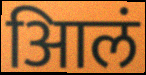
आिलं